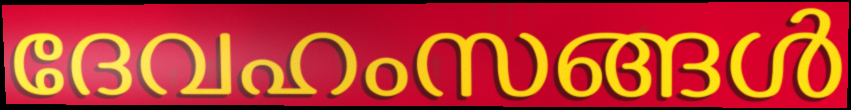
ദേവഹംസങ്ങൾ